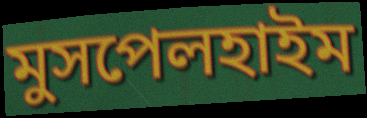
মুসপেলহাইম